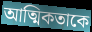
আত্মিকতাকে